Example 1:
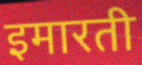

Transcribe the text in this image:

इमारती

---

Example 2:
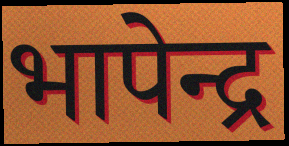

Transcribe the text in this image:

भापेन्द्र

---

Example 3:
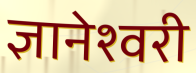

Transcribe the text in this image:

ज्ञानेश्वरी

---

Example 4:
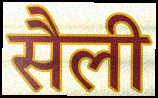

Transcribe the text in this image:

सैली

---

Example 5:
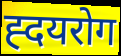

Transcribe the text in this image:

ह्दयरोग